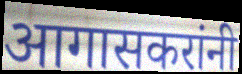
आगासकरांनी